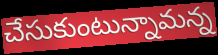
చేసుకుంటున్నామన్న